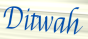
Ditwah